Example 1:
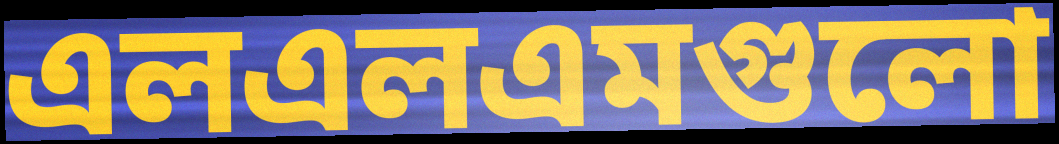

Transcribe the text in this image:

এলএলএমগুলো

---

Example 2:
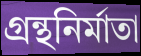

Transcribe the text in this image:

গ্রন্থনির্মাতা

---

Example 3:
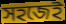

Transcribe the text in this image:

সহজেই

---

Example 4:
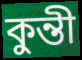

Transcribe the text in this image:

কুন্তী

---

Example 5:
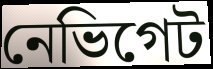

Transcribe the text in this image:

নেভিগেট